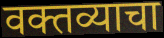
वक्तव्याचा